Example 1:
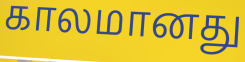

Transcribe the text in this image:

காலமானது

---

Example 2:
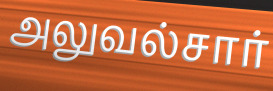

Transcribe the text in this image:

அலுவல்சார்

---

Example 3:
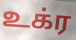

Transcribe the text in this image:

உக்ர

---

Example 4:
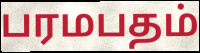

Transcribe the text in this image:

பரமபதம்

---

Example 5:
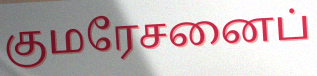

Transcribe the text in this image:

குமரேசனைப்